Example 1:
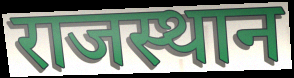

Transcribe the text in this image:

राजस्थान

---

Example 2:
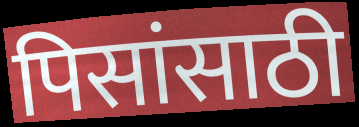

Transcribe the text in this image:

पिसांसाठी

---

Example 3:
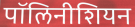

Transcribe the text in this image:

पॉलिनीशियन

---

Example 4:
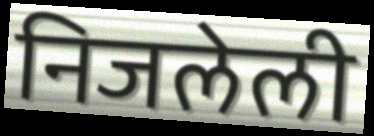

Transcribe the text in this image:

निजलेली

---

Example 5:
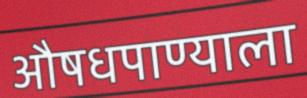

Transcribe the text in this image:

औषधपाण्याला